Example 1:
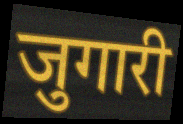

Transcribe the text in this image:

जुगारी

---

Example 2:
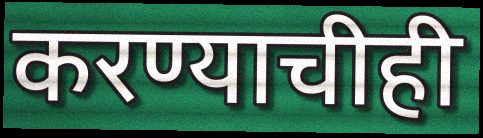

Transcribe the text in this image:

करण्याचीही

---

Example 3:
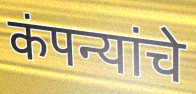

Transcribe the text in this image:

कंपन्यांचे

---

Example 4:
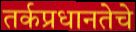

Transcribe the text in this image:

तर्कप्रधानतेचे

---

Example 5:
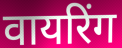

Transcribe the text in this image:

वायरिंग